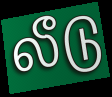
லீடு